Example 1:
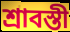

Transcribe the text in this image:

শ্রাবস্তী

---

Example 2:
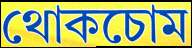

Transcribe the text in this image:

থোকচোম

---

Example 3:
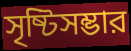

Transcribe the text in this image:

সৃষ্টিসম্ভার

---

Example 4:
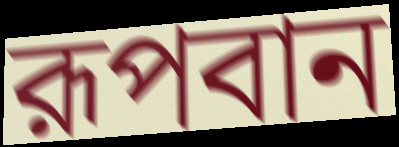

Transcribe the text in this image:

রূপবান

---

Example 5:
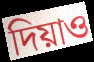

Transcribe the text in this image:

দিয়াও